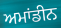
ਅਮਾਂਡੀਨ